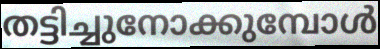
തട്ടിച്ചുനോക്കുമ്പോൾ